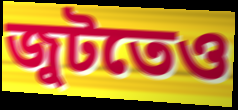
জুটতেও